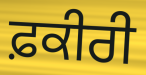
ਫ਼ਕੀਰੀ